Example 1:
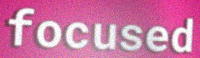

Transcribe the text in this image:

focused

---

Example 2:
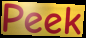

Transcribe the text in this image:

Peek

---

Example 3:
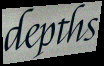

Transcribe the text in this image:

depths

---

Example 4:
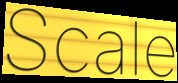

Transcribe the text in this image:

Scale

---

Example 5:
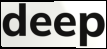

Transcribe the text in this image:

deep